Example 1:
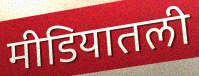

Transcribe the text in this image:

मीडियातली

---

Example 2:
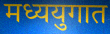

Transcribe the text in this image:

मध्ययुगात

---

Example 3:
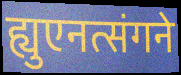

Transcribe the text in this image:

ह्युएनत्संगने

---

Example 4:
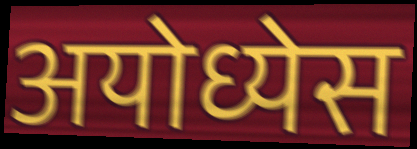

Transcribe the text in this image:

अयोध्येस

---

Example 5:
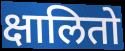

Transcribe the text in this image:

क्षालितो